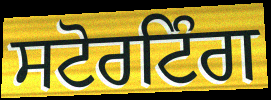
ਸਟੋਰਟਿੰਗ